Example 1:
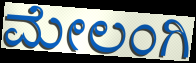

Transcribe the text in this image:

ಮೇಲಂಗಿ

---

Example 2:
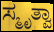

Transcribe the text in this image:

ಸ್ಮೃತ್ವಾ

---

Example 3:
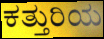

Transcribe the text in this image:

ಕತ್ತುರಿಯ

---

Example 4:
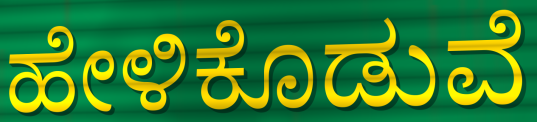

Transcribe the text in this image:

ಹೇಳಿಕೊಡುವೆ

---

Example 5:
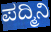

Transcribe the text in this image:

ಪದ್ಮಿನಿ